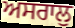
ਅਸਰਾਲੁ